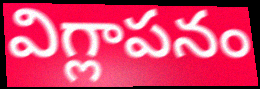
విగ్లాపనం